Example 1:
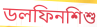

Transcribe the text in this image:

ডলফিনশিশু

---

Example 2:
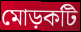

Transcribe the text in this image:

মোড়কটি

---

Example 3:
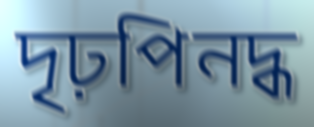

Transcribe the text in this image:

দৃঢ়পিনদ্ধ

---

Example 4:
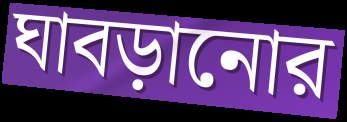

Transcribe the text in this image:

ঘাবড়ানোর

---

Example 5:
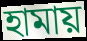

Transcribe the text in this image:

হামায়